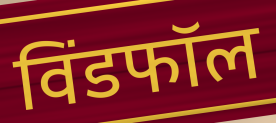
विंडफॉल